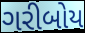
ગરીબોય